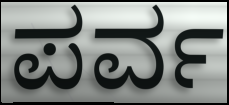
ಪರ್ವ